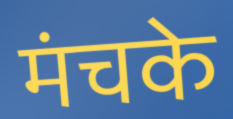
मंचके